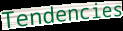
Tendencies